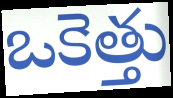
ఒకెత్తు